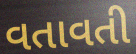
વતાવતી